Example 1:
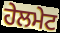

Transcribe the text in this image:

ਹੇਲਮੇਟ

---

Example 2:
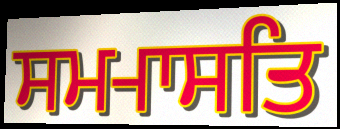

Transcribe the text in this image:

ਸਮ੍ਮਾਸਤਿ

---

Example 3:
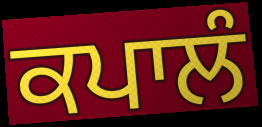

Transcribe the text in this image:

ਕਪਾਲੰ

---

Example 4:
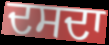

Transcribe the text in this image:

ਦਸਦਾ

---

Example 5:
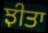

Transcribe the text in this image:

ਝੀਤਾ